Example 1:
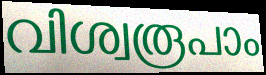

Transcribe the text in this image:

വിശ്വരൂപാം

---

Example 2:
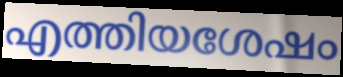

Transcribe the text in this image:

എത്തിയശേഷം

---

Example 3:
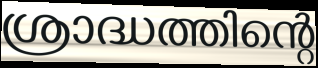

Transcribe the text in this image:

ശ്രാദ്ധത്തിന്റെ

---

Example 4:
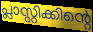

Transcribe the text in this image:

പ്ലാസ്റ്റിക്കിന്റെ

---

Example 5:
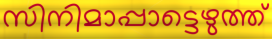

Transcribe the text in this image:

സിനിമാപ്പാട്ടെഴുത്ത്